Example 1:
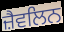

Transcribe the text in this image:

ਜ਼ੈਵਲਿਨ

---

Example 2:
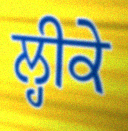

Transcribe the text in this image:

ਲ੍ਹੀਕੇ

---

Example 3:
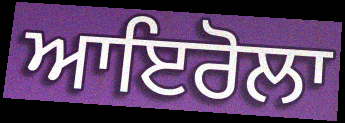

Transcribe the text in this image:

ਆਇਰੋਲਾ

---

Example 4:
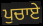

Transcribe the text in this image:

ਪੁਚਾਏ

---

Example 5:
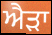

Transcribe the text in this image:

ਐੜਾ